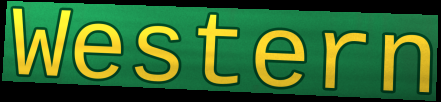
Western